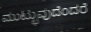
ಮುಟ್ಟುವುದೆಂದರೆ